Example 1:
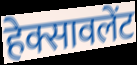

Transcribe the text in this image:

हेक्सावलेंट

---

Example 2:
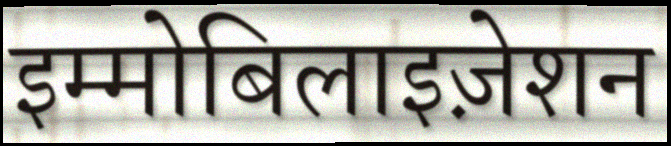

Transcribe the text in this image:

इम्मोबिलाइज़ेशन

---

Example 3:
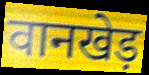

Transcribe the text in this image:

वानखेड़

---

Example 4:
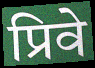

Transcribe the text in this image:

प्रिवे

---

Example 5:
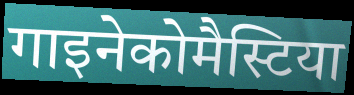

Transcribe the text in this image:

गाइनेकोमैस्टिया